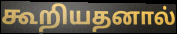
கூறியதனால்